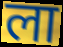
ला